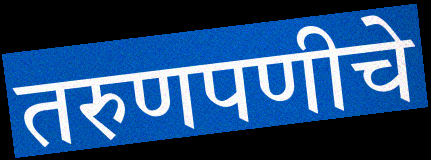
तरुणपणीचे